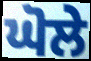
ਘੋਲੇ